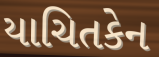
યાચિતકેન